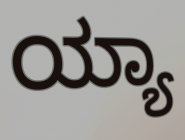
ಯ್ಯಾ